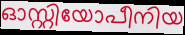
ഓസ്റ്റിയോപീനിയ